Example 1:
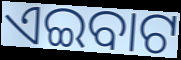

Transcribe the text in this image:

ଏଇବାଟ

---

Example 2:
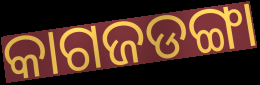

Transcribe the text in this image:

କାଗଜଡଙ୍ଗା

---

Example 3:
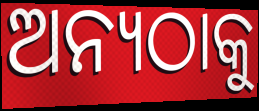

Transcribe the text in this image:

ଅନ୍ୟଠାକୁ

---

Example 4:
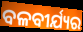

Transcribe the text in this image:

ବଳବୀର୍ଯ୍ୟର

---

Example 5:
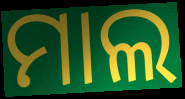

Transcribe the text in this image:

ମାଲ